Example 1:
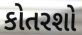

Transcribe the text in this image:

કોતરશો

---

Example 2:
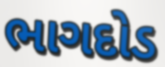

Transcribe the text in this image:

ભાગદોડ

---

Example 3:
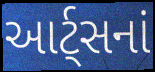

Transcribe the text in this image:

આર્ટ્સનાં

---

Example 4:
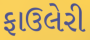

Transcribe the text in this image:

ફાઉલેરી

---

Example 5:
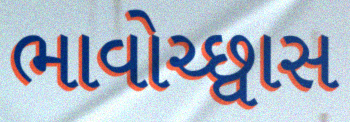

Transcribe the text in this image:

ભાવોચ્છ્વાસ